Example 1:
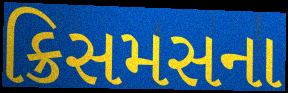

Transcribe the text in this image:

ક્રિસમસના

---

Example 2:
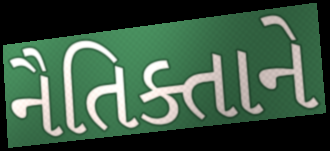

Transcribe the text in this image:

નૈતિક્તાને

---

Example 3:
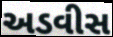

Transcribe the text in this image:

અડવીસ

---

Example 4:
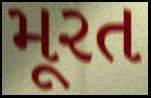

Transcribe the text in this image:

મૂરત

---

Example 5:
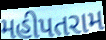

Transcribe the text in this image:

મહીપતરામ